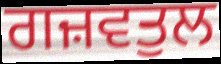
ਗਜ਼ਵਤੁਲ